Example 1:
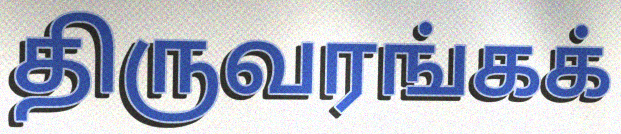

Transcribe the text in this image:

திருவரங்கக்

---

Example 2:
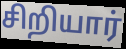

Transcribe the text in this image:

சிறியார்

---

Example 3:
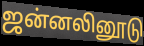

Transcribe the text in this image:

ஜன்னலினூடு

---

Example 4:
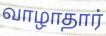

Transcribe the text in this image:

வாழாதார்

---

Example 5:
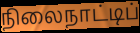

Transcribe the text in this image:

நிலைநாட்டிப்